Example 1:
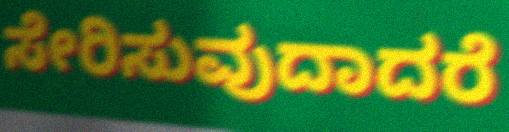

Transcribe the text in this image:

ಸೇರಿಸುವುದಾದರೆ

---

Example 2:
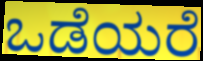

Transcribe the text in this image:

ಒಡೆಯರೆ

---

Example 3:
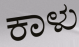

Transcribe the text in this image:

ಕಾಳು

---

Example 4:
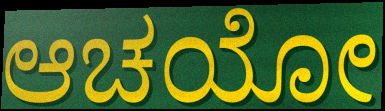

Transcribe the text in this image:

ಆಚಯೋ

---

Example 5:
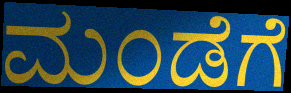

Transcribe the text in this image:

ಮಂಡೆಗೆ